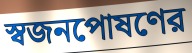
স্বজনপোষণের